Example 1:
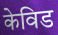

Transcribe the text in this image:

केविड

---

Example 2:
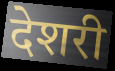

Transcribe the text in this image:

देशरी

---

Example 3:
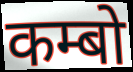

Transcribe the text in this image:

कम्बो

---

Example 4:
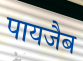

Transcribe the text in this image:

पायजैब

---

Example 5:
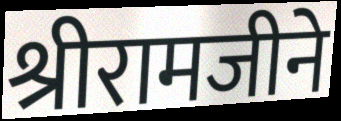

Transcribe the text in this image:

श्रीरामजीने